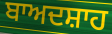
ਬਾਅਦਸ਼ਾਹ